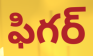
ఫిగర్